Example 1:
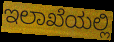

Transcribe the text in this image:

ಇಲಾಖೆಯಲ್ಲಿ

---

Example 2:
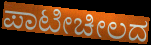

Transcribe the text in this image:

ಪಾಟೀಚೀಲದ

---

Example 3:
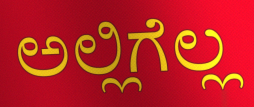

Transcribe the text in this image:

ಅಲ್ಲಿಗೆಲ್ಲ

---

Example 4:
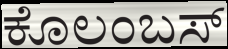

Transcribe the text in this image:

ಕೊಲಂಬಸ್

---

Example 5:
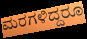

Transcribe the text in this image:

ಮರಗಳಿದ್ದರೂ